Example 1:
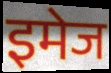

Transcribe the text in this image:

इमेज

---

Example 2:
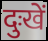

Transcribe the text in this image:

दुःखें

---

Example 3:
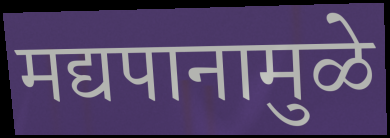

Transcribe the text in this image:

मद्यपानामुळे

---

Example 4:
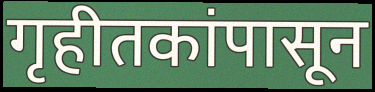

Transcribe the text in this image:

गृहीतकांपासून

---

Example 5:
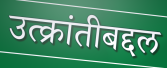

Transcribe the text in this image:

उत्क्रांतीबद्दल